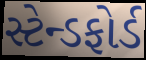
સ્ટેન્ડફોર્ડ